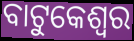
ବାଟୁକେଶ୍ୱର